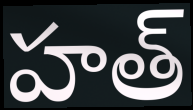
హత్